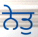
ਨੇਤੁ